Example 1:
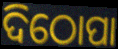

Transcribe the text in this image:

ଦିଠୋପା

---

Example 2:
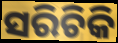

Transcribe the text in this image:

ସରିଚିକି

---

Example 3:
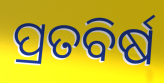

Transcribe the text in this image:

ପ୍ରତବିର୍ଷ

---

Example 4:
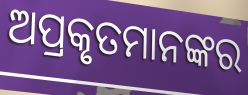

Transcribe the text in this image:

ଅପ୍ରକୃତମାନଙ୍କର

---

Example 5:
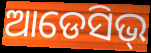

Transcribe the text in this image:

ଆଡେସିଭ୍